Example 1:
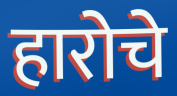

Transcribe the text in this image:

हारोचे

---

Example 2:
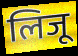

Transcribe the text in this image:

लिजू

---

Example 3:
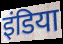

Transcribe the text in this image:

इंडिया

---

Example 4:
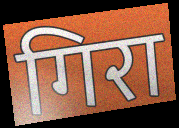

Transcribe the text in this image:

गिरा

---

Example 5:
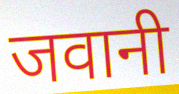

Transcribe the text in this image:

जवानी